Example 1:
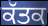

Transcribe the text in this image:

ਕੱਤਕ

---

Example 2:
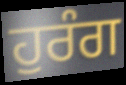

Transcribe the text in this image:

ਹੁਰੰਗ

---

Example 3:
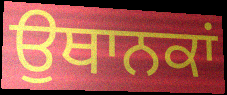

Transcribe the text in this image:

ਉਥਾਨਕਾਂ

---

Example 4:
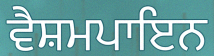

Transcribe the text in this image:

ਵੈਸ਼ਮਪਾਇਨ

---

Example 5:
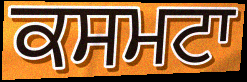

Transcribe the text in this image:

ਕਸਮਟਾ